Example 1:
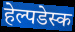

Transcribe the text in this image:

हेल्पडेस्क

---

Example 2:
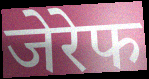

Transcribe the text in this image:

जेरेफ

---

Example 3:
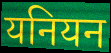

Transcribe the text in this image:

यनियन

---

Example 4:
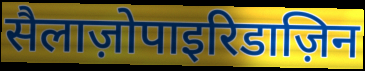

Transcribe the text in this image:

सैलाज़ोपाइरिडाज़िन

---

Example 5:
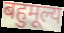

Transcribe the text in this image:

बहुमूल्य